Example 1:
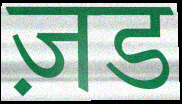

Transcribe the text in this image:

ज़ड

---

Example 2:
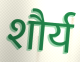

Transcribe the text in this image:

शौर्य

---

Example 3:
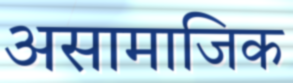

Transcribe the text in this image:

असामाजिक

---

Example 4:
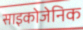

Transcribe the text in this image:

साइकोजेनिक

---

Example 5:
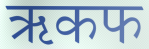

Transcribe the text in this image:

ऋकफ